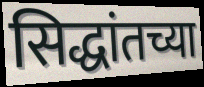
सिद्धांतच्या